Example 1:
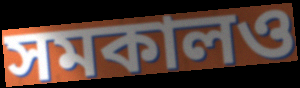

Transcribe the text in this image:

সমকালও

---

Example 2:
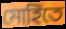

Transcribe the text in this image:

মোহিতে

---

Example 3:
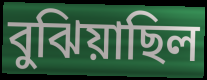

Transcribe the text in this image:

বুঝিয়াছিল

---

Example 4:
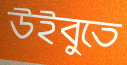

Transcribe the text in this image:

উইবুতে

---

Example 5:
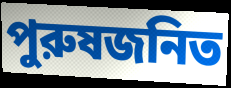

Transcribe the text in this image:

পুরুষজনিত